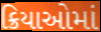
ક્રિયાઓમાં